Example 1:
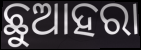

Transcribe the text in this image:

ଛୁଆହରା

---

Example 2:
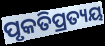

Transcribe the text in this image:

ପୃକତିପ୍ରତ୍ୟୟ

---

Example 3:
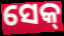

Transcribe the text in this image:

ସେକ୍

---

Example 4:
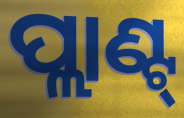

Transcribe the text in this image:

ପ୍ଲାଣ୍ଟ୍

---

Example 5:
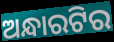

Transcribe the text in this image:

ଅନ୍ଧାରଟିର